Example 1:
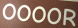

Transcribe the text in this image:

OOOOR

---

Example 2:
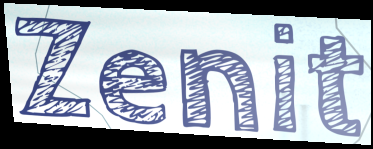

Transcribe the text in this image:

Zenit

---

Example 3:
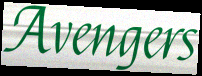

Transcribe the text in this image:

Avengers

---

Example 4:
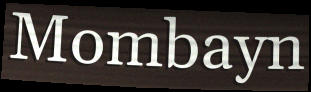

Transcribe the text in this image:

Mombayn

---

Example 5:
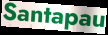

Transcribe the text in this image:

Santapau